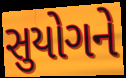
સુયોગને